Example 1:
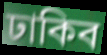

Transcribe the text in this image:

ঢাকিব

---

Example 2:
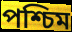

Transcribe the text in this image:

পশ্চিম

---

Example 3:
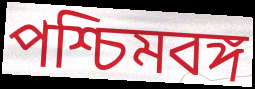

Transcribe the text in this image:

পশ্চিমবঙ্গ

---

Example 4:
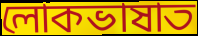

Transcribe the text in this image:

লোকভাষাত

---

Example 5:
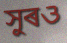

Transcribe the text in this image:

সুৰও